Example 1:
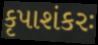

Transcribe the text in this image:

કૃપાશંકરઃ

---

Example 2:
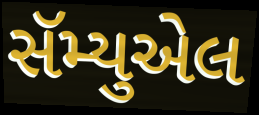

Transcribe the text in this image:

સૅમ્યુએલ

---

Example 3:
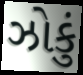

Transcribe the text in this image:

ઝોકું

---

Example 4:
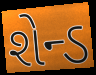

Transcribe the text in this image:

શેન્ડ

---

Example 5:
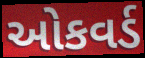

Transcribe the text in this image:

ઓકવર્ડ